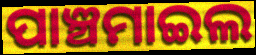
ପାଞ୍ଚମାଇଲ